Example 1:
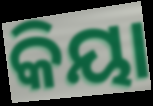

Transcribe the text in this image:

କିୟା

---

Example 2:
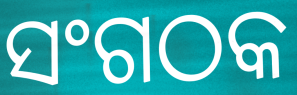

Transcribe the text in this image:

ସଂଗଠକ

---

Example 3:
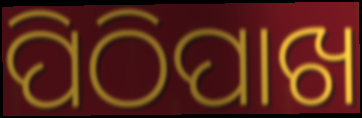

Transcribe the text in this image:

ପିଠିପାଖ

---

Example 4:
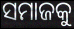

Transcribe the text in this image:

ସମାଜକୁ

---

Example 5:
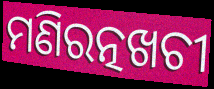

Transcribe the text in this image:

ମଣିରତ୍ନଖଚୀ